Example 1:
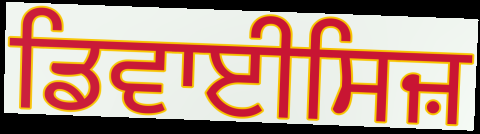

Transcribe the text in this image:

ਡਿਵਾਈਸਿਜ਼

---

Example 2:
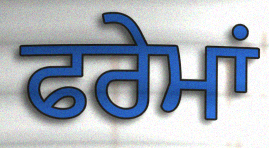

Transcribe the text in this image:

ਫਰੇਮਾਂ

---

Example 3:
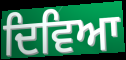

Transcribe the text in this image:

ਦਿਵਿਆ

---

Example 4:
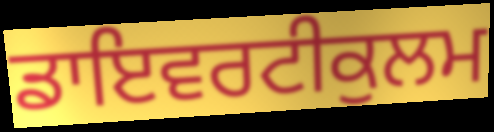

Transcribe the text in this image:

ਡਾਇਵਰਟੀਕੁਲਮ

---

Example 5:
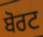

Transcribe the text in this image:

ਬੋਰਟ